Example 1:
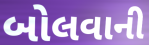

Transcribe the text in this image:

બોલવાની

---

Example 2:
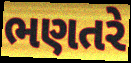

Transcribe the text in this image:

ભણતરે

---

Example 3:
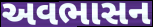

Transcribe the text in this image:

અવભાસન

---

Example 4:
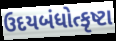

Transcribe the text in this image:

ઉદયબંધોત્કૃષ્ટા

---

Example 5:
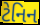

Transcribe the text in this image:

ટેનિન